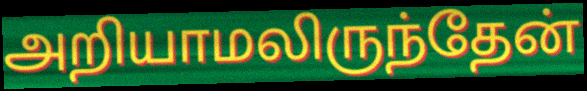
அறியாமலிருந்தேன்